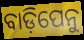
ବାଡ଼ିପେନୁ